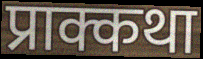
प्राक्कथा